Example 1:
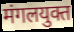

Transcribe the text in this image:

मंगलयुक्त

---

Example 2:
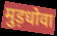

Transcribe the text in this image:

मुड़धोवा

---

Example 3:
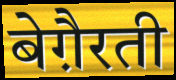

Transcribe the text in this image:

बेग़ैरती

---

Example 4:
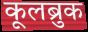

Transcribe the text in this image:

कूलब्रुक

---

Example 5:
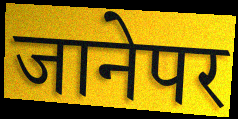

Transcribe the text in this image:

जानेपर